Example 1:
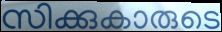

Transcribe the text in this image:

സിക്കുകാരുടെ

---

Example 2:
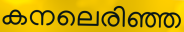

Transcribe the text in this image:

കനലെരിഞ്ഞ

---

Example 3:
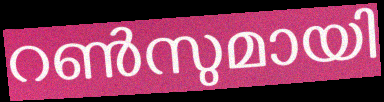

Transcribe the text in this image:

റൺസുമായി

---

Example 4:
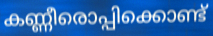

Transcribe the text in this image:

കണ്ണീരൊപ്പിക്കൊണ്ട്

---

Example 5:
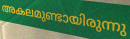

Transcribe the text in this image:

അകലമുണ്ടായിരുന്നു